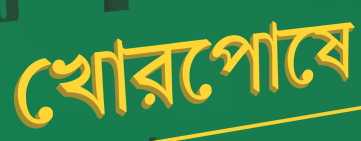
খোরপোষে